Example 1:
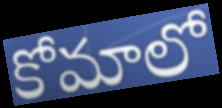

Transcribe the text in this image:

కోమాలో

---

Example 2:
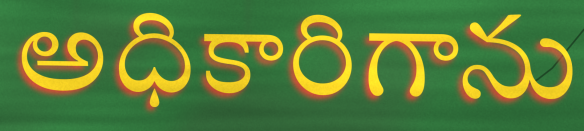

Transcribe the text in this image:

అధికారిగాను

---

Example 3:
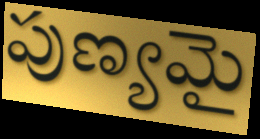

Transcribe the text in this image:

పుణ్యమై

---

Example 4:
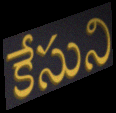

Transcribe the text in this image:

కేసుని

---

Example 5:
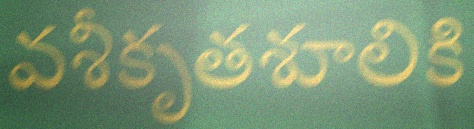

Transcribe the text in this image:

వశీకృతశూలికి